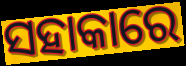
ସହାକାରେ